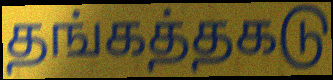
தங்கத்தகடு